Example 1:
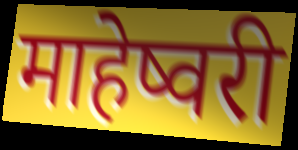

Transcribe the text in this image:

माहेष्वरी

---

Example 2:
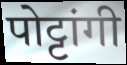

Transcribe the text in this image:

पोट्टांगी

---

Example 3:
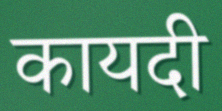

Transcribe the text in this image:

कायदी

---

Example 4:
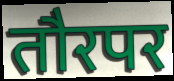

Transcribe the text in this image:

तौरपर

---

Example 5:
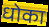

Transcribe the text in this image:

धोका